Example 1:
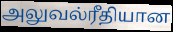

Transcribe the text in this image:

அலுவல்ரீதியான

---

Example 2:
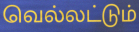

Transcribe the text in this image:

வெல்லட்டும்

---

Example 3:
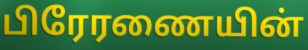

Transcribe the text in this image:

பிரேரணையின்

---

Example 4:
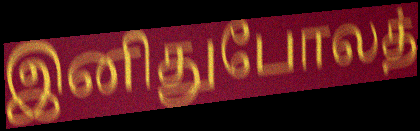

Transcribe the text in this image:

இனிதுபோலத்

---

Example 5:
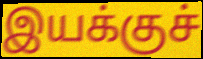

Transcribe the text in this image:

இயக்குச்